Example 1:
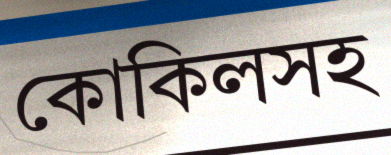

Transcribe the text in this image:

কোকিলসহ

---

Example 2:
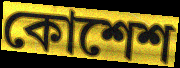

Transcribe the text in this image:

কোশেশ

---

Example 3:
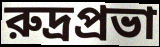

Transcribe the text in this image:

রুদ্রপ্রভা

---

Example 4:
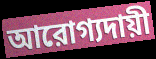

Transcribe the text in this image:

আরোগ্যদায়ী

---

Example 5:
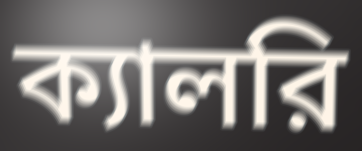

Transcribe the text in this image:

ক্যালরি